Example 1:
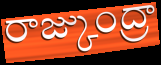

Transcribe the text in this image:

రాజ్కుంద్రా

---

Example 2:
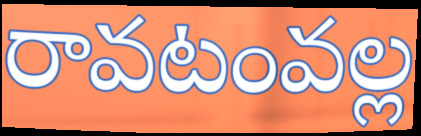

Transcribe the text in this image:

రావటంవల్ల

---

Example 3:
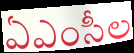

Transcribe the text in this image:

ఏఎంసీల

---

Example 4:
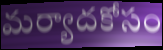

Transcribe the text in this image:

మర్యాదకోసం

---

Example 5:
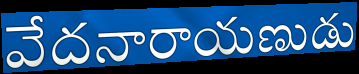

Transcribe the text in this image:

వేదనారాయణుడు